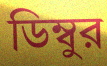
ডিম্বুর